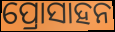
ପ୍ରୋସାହନ